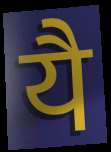
यै